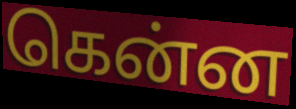
கென்ன